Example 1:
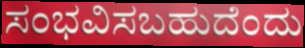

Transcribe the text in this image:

ಸಂಭವಿಸಬಹುದೆಂದು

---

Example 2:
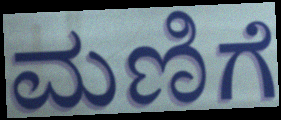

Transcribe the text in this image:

ಮಣಿಗೆ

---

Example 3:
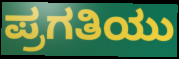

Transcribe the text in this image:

ಪ್ರಗತಿಯು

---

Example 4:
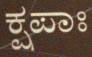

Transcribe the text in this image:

ಕ್ಷಪಾಃ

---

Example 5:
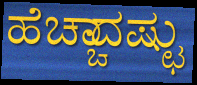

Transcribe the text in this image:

ಹೆಚ್ಚಾದಷ್ಟು